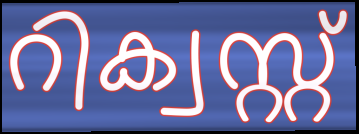
റിക്വസ്റ്റ്